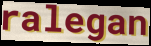
ralegan